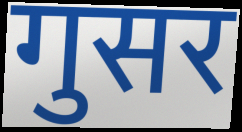
गुसर